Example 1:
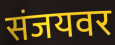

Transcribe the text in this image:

संजयवर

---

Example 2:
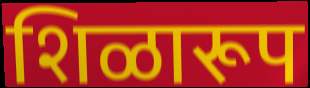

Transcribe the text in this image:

शिळारूप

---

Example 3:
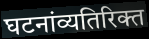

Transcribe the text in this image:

घटनांव्यतिरिक्त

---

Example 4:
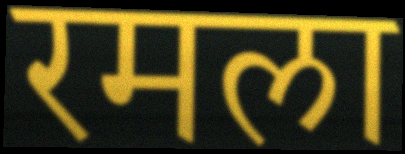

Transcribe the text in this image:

रमला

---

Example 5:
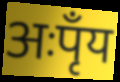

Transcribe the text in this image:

अःपृँय